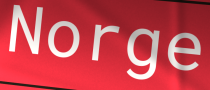
Norge